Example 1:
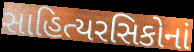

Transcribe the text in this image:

સાહિત્યરસિકોનાં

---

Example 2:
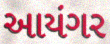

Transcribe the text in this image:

આયંગર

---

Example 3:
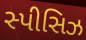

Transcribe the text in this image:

સ્પીસિઝ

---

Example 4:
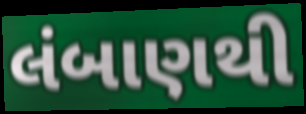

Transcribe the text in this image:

લંબાણથી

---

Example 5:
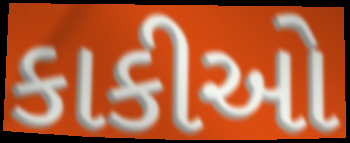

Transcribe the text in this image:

કાકીઓ